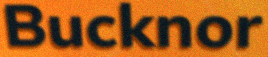
Bucknor